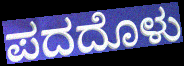
ಪದದೊಳು